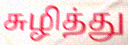
சுழித்து